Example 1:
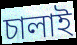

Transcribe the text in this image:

চালাই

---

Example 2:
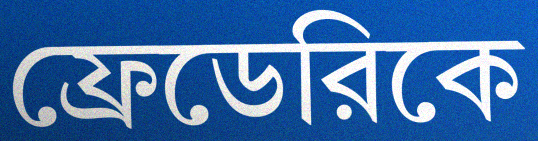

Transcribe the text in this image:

ফ্রেডেরিকে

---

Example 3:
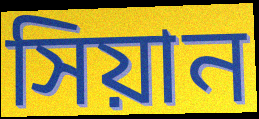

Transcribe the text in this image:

সিয়ান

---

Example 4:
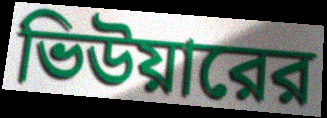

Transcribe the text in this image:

ভিউয়ারের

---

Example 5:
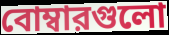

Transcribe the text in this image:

বোম্বারগুলো